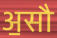
अ॒सौ